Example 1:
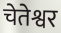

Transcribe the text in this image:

चेतेश्वर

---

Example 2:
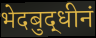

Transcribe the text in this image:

भेदबुद्धीनं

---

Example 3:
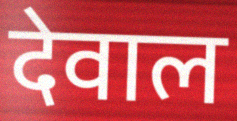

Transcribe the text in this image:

देवाल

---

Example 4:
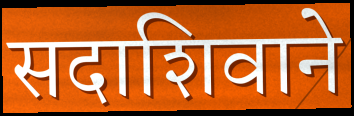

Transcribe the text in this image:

सदाशिवाने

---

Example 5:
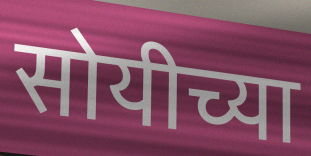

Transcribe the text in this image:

सोयीच्या